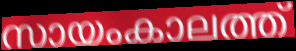
സായംകാലത്ത്